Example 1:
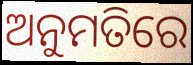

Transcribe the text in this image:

ଅନୁମତିରେ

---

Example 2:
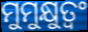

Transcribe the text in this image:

ମୁମୁକ୍ଷୁତ୍ୱଂ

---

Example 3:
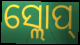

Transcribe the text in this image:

ସ୍ଲୋପ୍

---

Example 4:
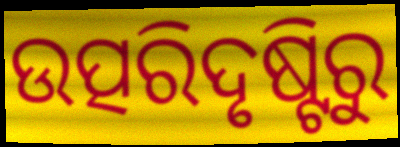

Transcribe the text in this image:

ଉତ୍ପରିଦୃଷ୍ଟିରୁ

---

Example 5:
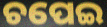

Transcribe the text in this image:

ଚପେଇ